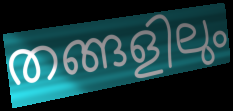
തങ്ങളിലും